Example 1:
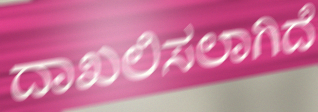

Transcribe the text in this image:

ದಾಖಲಿಸಲಾಗಿದೆ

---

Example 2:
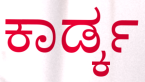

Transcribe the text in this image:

ಕಾರ್ಡ್ಕ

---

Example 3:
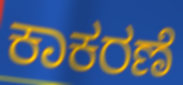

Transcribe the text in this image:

ಕಾಕರಣೆ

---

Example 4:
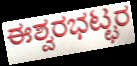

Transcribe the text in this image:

ಈಶ್ವರಭಟ್ಟರ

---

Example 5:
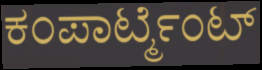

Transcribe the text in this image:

ಕಂಪಾರ್ಟ್ಮೆಂಟ್